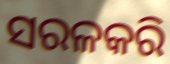
ସରଳକରି